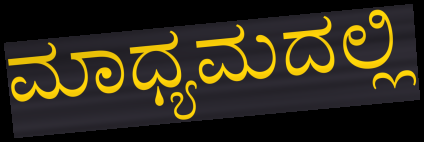
ಮಾಧ್ಯಮದಲ್ಲಿ